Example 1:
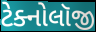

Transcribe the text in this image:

ટેક્નોલૉજી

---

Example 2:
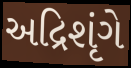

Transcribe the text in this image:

અદ્રિશૃંગે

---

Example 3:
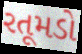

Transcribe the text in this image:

રતૂમડો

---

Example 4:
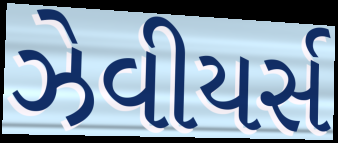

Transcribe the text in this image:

ઝેવીયર્સ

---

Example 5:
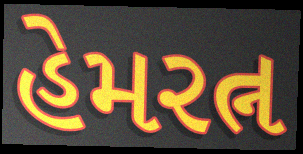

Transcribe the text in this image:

હેમરત્ન